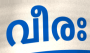
വീരഃ